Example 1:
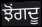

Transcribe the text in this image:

ਝੋਂਗਦੂ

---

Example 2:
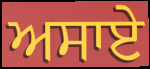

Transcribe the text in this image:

ਅਸਾਏ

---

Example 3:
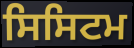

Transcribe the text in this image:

ਸਿਸਿਟਮ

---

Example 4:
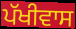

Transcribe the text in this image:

ਪੱਖੀਵਾਸ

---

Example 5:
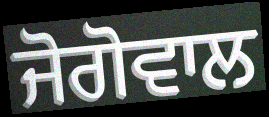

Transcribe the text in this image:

ਜੋਗੋਵਾਲ